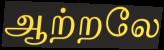
ஆற்றலே